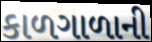
કાળગાળાની